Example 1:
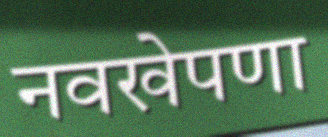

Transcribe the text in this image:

नवखेपणा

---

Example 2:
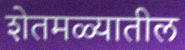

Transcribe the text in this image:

शेतमळ्यातील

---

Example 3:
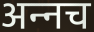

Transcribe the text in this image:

अन्नच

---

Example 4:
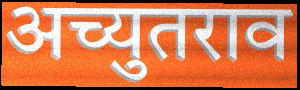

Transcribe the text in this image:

अच्युतराव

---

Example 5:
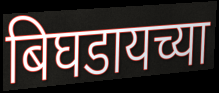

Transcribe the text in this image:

बिघडायच्या